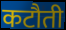
कटौती